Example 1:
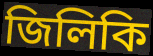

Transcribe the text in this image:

জিলিকি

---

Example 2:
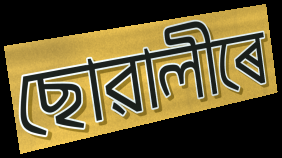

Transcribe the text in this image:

ছোৱালীৰে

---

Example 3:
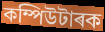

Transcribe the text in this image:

কম্পিউটাৰক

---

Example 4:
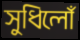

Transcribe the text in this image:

সুধিলোঁ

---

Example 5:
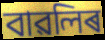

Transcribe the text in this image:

বাৱলিৰ